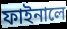
ফাইনালে